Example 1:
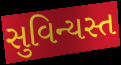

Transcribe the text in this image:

સુવિન્યસ્ત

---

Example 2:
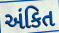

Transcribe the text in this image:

અંકિત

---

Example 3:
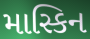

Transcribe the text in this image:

માસ્કિન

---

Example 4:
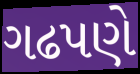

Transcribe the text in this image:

ગઢપણે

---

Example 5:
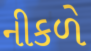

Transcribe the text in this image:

નીકળે